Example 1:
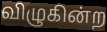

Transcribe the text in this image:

விழுகின்ற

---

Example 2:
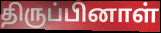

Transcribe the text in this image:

திருப்பினாள்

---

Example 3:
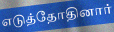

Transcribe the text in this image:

எடுத்தோதினார்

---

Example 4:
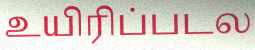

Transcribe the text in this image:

உயிரிப்படல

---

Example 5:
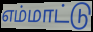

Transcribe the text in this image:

எம்மாட்டு